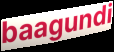
baagundi